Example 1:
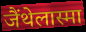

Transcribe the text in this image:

जैंथेलास्मा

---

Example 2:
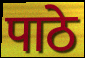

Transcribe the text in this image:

पाठे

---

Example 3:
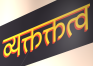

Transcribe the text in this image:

व्यक्तक्तत्व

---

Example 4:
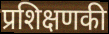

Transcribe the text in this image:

प्रशिक्षणकी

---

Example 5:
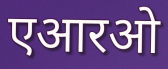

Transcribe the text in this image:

एआरओ